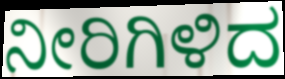
ನೀರಿಗಿಳಿದ